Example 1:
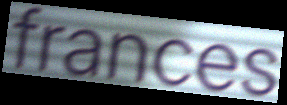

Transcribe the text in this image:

frances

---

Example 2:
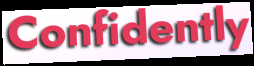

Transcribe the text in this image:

Confidently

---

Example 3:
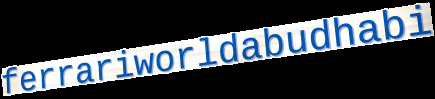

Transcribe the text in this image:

ferrariworldabudhabi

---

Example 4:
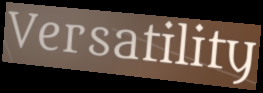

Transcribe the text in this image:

Versatility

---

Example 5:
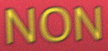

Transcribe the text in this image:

NON